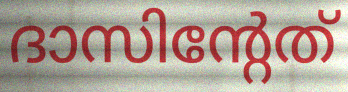
ദാസിന്റേത്